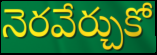
నెరవేర్చుకో